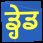
ਡ੍ਹੇਡ